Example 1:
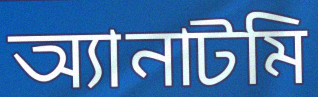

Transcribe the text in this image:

অ্যানাটমি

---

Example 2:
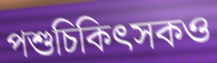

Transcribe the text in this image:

পশুচিকিৎসকও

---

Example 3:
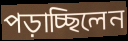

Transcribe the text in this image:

পড়াচ্ছিলেন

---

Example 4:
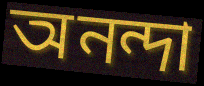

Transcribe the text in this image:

অনন্দা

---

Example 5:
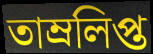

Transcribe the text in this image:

তাম্রলিপ্ত